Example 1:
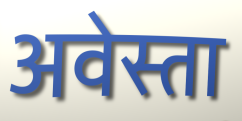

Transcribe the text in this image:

अवेस्ता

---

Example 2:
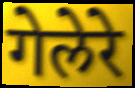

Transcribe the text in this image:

गेलेरे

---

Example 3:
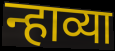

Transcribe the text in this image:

न्हाव्या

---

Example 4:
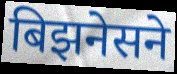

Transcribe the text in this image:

बिझनेसने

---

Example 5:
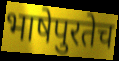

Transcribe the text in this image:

भाषेपुरतेच